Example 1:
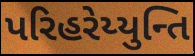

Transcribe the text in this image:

પરિહરેય્યુન્તિ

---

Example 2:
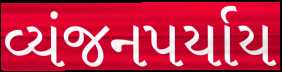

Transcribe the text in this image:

વ્યંજનપર્યાય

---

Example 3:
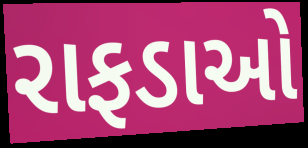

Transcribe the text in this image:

રાફડાઓ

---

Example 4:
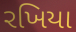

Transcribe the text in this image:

રખિયા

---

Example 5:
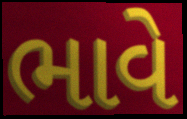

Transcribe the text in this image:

ભાવે